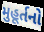
મુહૂર્તનો